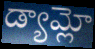
డ్యామ్లో